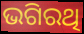
ଭଗିରଥି